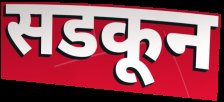
सडकून